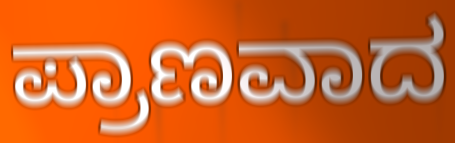
ಪ್ರಾಣವಾದ